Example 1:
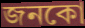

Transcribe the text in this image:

জনকো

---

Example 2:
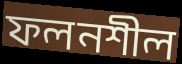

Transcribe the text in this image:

ফলনশীল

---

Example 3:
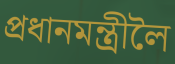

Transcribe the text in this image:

প্ৰধানমন্ত্ৰীলৈ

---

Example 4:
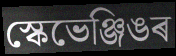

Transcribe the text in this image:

স্কেভেঞ্জিঙৰ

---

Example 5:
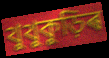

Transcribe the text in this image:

থুথুকুড়িৰ